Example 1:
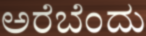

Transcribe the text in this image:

ಅರೆಬೆಂದು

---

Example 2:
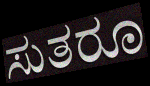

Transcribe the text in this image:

ಸುತರೂ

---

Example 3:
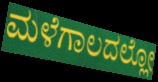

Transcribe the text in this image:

ಮಳೆಗಾಲದಲ್ಲೋ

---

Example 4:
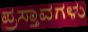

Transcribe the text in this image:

ಪ್ರಸ್ತಾವಗಳು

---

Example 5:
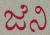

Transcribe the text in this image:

ಜೆನಿ